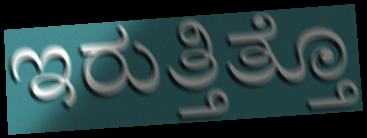
ಇರುತ್ತಿತ್ತೊ